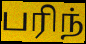
பரிந்